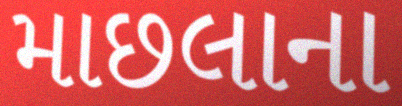
માછલાના